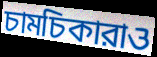
চামচিকারাও